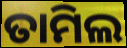
ତାମିଲ